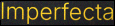
Imperfecta